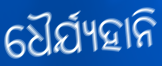
ଧୈର୍ଯ୍ୟହାନି